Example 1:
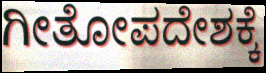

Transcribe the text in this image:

ಗೀತೋಪದೇಶಕ್ಕೆ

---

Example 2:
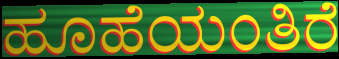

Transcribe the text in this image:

ಹೂಹೆಯಂತಿರೆ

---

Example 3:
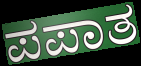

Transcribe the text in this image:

ಪಪಾತ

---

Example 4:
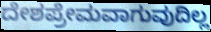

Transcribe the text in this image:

ದೇಶಪ್ರೇಮವಾಗುವುದಿಲ್ಲ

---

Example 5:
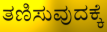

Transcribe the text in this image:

ತಣಿಸುವುದಕ್ಕೆ